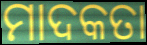
ମାଦକତା